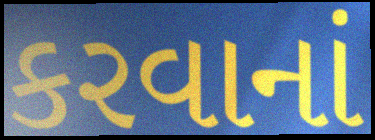
કરવાનાં